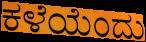
ಕಳೆಯೆಂದು